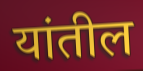
यांतील